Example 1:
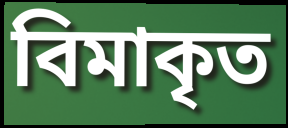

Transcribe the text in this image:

বিমাকৃত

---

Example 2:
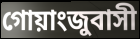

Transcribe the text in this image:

গোয়াংজুবাসী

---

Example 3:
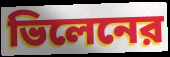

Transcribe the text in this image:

ভিলেনের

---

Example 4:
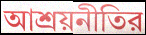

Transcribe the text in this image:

আশ্রয়নীতির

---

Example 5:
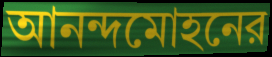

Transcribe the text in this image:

আনন্দমোহনের